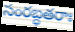
సంరబ్ధతరాః